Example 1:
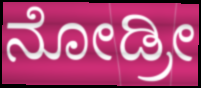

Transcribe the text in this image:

ನೋಡ್ರೀ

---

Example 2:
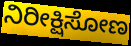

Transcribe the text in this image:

ನಿರೀಕ್ಷಿಸೋಣ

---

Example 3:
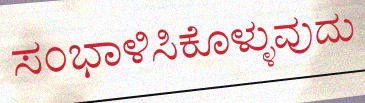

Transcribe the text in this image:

ಸಂಭಾಳಿಸಿಕೊಳ್ಳುವುದು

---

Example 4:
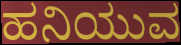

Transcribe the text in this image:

ಹನಿಯುವ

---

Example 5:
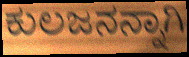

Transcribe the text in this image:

ಕುಲಜನನ್ನಾಗಿ